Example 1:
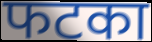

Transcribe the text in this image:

फटका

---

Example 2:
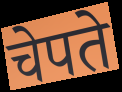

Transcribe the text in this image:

चेपते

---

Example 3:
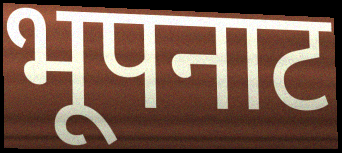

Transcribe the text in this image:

भूपनाट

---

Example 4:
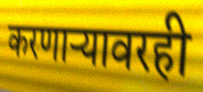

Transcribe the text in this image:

करणाऱ्यावरही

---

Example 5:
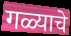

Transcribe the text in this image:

गळ्याचे